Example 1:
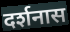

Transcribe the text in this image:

दर्शनास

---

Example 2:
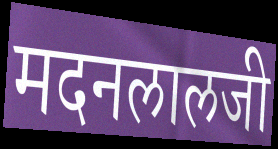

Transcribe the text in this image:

मदनलालजी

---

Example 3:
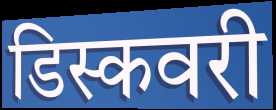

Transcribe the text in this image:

डिस्कवरी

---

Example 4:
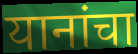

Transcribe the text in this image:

यानांचा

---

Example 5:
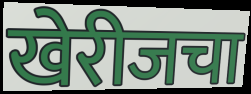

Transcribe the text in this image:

खेरीजचा